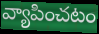
వ్యాపించటం